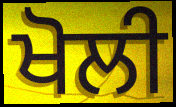
ਖੋਲੀ